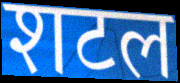
शटल